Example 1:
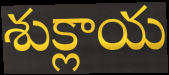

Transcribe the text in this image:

శుక్లాయ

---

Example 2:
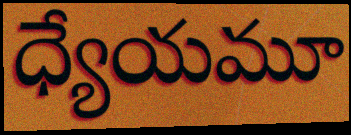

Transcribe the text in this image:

ధ్యేయమూ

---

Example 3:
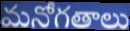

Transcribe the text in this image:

మనోగతాలు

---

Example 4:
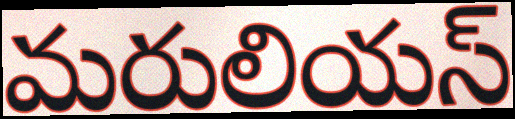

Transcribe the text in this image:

మరులియస్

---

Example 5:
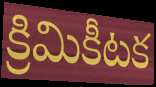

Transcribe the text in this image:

క్రిమికీటక